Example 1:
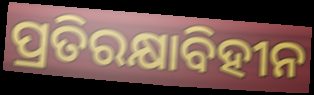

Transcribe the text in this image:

ପ୍ରତିରକ୍ଷାବିହୀନ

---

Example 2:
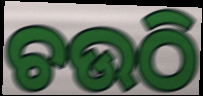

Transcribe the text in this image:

ଚଉଠି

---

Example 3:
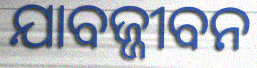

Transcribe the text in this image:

ଯାବଜ୍ଜୀବନ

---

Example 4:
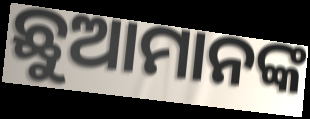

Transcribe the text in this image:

ଛୁଆମାନଙ୍କ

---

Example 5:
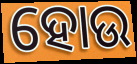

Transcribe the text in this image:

ହୋଉ